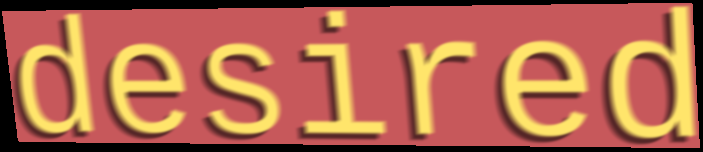
desired